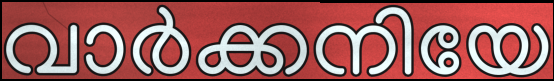
വാർക്കനിയേ